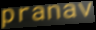
pranav